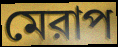
মেরাপ